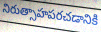
నిరుత్సాహపరచడానికి